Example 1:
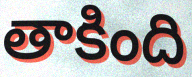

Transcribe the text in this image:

తాకింది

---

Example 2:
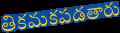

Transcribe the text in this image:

తికమకపడతారు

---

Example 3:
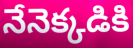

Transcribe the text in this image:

నేనెక్కడికి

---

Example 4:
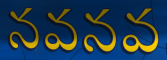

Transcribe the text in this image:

నవనవ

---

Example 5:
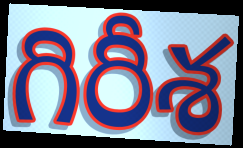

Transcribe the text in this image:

గిరీశ